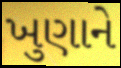
ખુણાને